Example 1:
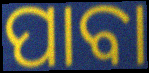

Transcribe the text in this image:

ପାବା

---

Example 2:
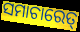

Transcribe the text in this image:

ସମାଚାରେତ୍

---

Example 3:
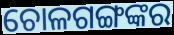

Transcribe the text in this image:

ଚୋଳଗଙ୍ଗଙ୍କର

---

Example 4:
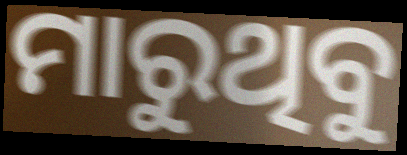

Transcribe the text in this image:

ମାରୁଥିବୁ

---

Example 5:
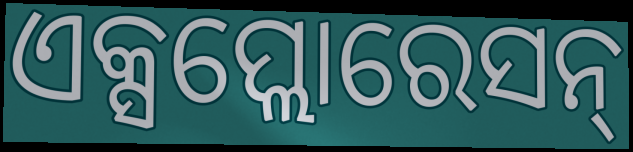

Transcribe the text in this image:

ଏକ୍ସପ୍ଲୋରେସନ୍